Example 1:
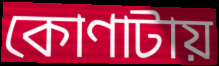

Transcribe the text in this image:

কোণাটায়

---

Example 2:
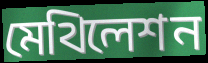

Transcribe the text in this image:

মেথিলেশন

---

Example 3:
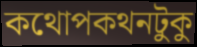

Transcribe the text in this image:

কথোপকথনটুকু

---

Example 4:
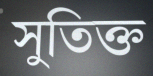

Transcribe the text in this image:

সুতিক্ত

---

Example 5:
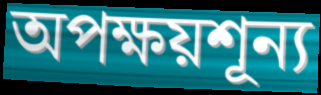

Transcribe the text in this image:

অপক্ষয়শূন্য